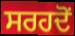
ਸਰਹਦੋਂ